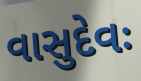
વાસુદેવઃ